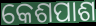
କେଶପାଶ